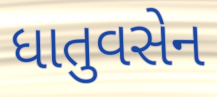
ધાતુવસેન